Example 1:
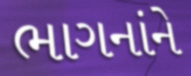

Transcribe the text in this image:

ભાગનાંને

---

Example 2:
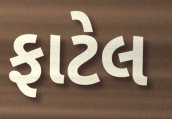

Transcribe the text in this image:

ફાટેલ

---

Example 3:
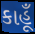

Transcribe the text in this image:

કાહૂઁ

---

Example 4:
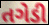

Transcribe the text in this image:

તગેડી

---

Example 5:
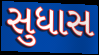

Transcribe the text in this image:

સુધાસ